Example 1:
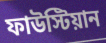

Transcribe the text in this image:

ফাউস্টিয়ান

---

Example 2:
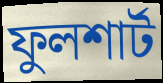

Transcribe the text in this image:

ফুলশার্ট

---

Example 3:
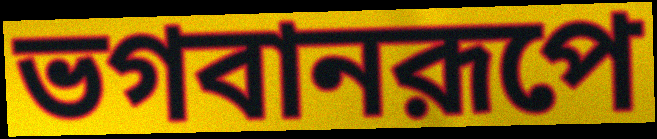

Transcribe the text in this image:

ভগবানরূপে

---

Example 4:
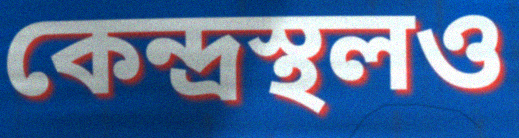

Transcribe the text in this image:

কেন্দ্রস্থলও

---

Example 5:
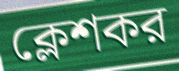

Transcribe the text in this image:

ক্লেশকর